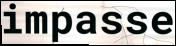
impasse